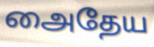
அைதேய